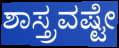
ಶಾಸ್ತ್ರವಷ್ಟೇ